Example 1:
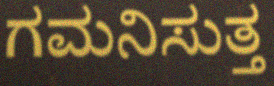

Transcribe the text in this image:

ಗಮನಿಸುತ್ತ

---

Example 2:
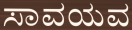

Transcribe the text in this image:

ಸಾವಯವ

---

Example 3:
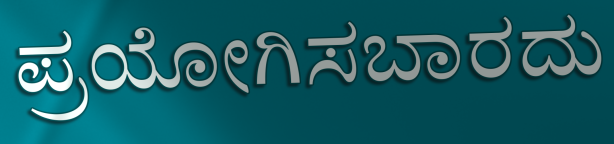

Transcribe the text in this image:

ಪ್ರಯೋಗಿಸಬಾರದು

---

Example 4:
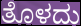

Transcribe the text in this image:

ತೊಳದು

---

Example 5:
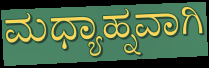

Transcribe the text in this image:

ಮಧ್ಯಾಹ್ನವಾಗಿ